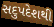
સદુપદેશથી